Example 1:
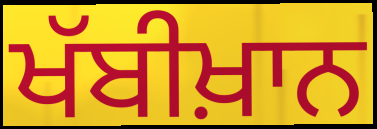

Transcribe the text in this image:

ਖੱਬੀਖ਼ਾਨ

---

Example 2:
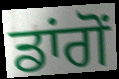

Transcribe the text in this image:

ਡਾਂਗੋਂ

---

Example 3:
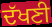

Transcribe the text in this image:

ਦੱਖਣੀ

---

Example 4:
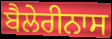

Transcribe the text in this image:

ਬੈਲੇਰੀਨਾਸ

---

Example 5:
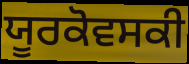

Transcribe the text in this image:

ਯੂਰਕੋਵਸਕੀ